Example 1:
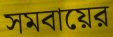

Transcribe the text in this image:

সমবায়ের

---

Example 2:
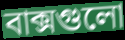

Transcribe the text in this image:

বাক্সগুলো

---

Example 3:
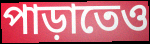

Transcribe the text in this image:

পাড়াতেও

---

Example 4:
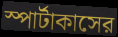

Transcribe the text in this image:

স্পার্টাকাসের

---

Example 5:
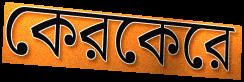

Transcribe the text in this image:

কেরকেরে